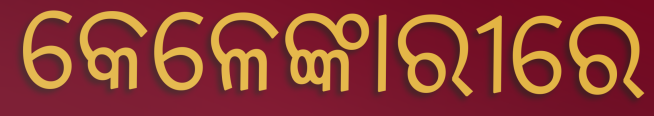
କେଳେଙ୍କାରୀରେ